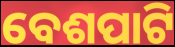
ବେଶପାଟି